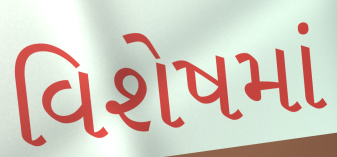
વિશેષમાં